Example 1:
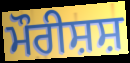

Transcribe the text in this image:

ਮੌਰੀਸ਼ਸ਼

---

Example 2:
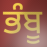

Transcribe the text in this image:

ਭੰਬੂ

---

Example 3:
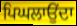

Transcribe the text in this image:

ਪਿਘਲਾਉਂਦਾ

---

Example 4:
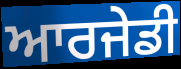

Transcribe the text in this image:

ਆਰਜੇਡੀ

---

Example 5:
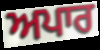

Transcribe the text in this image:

ਅਪਾਰ